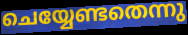
ചെയ്യേണ്ടതെന്നു